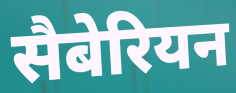
सैबेरियन